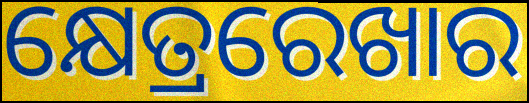
କ୍ଷେତ୍ରରେଖାର